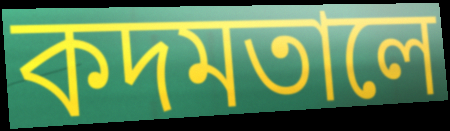
কদমতালে